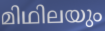
മിഥിലയും